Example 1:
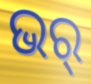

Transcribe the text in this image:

ଭର୍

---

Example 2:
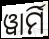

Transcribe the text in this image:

ୱାର୍ମି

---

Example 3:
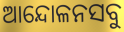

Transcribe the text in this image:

ଆନ୍ଦୋଳନସବୁ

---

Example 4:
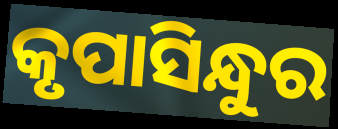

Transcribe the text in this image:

କୃପାସିନ୍ଧୁର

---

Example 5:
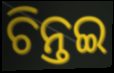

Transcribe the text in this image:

ଚିନ୍ତଇ